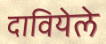
दावियेले